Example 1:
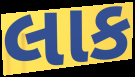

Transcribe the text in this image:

લાક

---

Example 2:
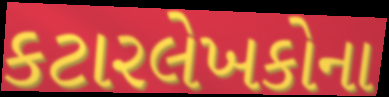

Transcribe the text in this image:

કટારલેખકોના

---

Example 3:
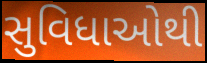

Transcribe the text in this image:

સુવિધાઓથી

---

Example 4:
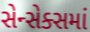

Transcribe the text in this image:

સેન્સેક્સમાં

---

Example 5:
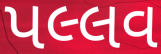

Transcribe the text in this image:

પલ્લવ